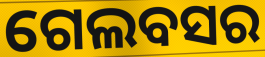
ଗେଲବସର